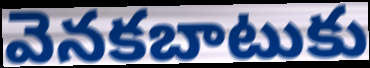
వెనకబాటుకు